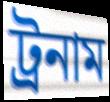
ট্রনাম